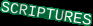
SCRIPTURES